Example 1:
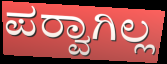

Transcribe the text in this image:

ಪರ‍್ವಾಗಿಲ್ಲ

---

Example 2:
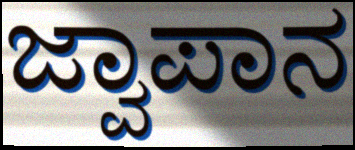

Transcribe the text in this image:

ಜ್ವಾಪಾನ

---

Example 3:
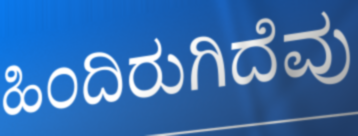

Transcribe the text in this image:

ಹಿಂದಿರುಗಿದೆವು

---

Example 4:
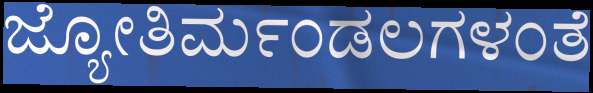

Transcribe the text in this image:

ಜ್ಯೋತಿರ್ಮಂಡಲಗಳಂತೆ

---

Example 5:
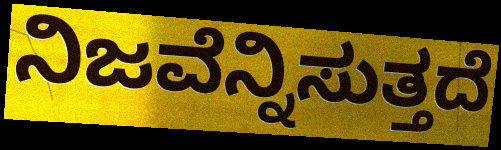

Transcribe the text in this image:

ನಿಜವೆನ್ನಿಸುತ್ತದೆ